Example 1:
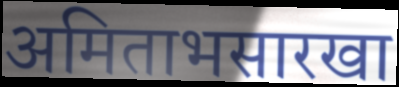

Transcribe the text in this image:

अमिताभसारखा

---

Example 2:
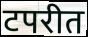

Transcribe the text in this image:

टपरीत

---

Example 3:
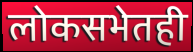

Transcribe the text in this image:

लोकसभेतही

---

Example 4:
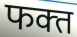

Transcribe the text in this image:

फक्‍त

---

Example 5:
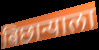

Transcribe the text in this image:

बिछान्याला